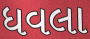
ધવલા